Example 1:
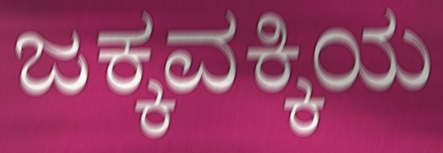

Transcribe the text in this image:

ಜಕ್ಕವಕ್ಕಿಯ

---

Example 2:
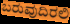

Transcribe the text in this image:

ಬರುವುದಿರಲಿ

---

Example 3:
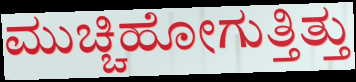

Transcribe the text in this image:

ಮುಚ್ಚಿಹೋಗುತ್ತಿತ್ತು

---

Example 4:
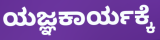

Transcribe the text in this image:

ಯಜ್ಞಕಾರ್ಯಕ್ಕೆ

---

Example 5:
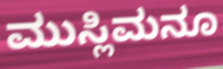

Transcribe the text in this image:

ಮುಸ್ಲಿಮನೂ